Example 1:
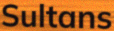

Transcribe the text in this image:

Sultans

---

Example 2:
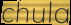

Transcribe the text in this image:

chula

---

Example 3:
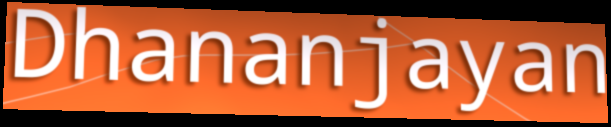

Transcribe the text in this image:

Dhananjayan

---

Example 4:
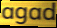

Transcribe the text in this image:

agad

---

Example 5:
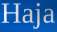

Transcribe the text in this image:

Haja